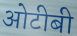
ओटीबी